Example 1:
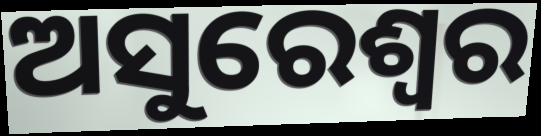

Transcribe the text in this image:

ଅସୁରେଶ୍ଵର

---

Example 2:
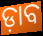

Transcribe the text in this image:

ଡ଼ାବ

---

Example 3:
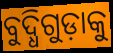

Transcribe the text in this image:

ବୁଦ୍ଧିଗୁଡ଼ାକୁ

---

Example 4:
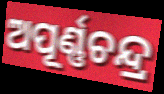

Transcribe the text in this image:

ଅପୂର୍ଣ୍ଣଚନ୍ଦ୍ର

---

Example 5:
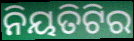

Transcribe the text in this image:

ନିୟତିଟିର